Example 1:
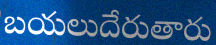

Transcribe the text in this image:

బయలుదేరుతారు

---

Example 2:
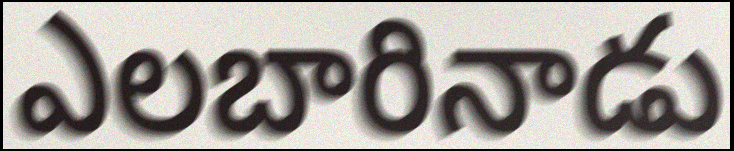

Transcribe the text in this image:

ఎలబారినాడు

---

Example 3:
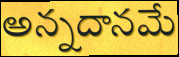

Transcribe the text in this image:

అన్నదానమే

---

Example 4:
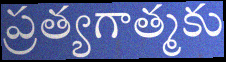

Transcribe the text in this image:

ప్రత్యగాత్మకు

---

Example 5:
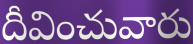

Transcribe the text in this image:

దీవించువారు